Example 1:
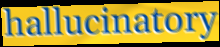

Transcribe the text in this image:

hallucinatory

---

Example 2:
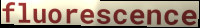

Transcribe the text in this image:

fluorescence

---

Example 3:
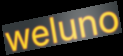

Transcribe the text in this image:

weluno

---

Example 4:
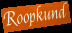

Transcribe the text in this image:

Roopkund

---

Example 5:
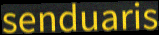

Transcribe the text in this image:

senduaris